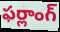
ఫర్లాంగ్